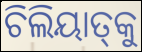
ଚିଲିୟାତ୍‍କୁ